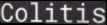
Colitis